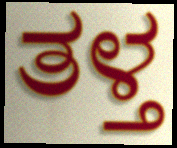
ತಳ್ತ